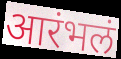
आरंभलं